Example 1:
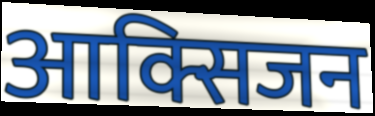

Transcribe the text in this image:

आक्सिजन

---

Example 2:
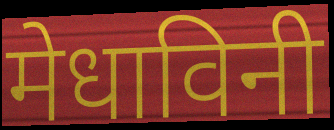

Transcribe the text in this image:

मेधाविनी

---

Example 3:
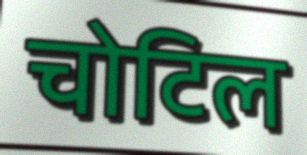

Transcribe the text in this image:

चोटिल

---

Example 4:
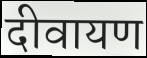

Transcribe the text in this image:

दीवायण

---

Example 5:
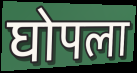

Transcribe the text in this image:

घोपला